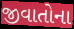
જીવાતોના